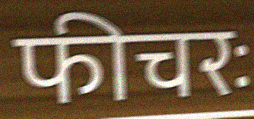
फीचरः